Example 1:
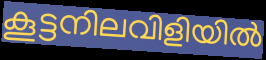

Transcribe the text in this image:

കൂട്ടനിലവിളിയിൽ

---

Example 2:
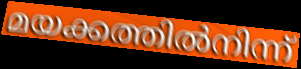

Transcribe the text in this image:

മയക്കത്തിൽനിന്ന്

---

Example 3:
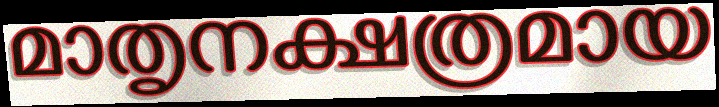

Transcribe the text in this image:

മാതൃനക്ഷത്രമായ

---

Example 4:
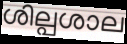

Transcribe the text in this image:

ശില്പശാല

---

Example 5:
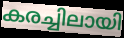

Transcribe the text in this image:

കരച്ചിലായി